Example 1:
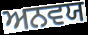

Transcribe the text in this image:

ਅਨਵਯ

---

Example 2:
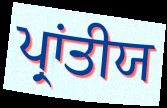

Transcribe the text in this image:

ਪ੍ਰਾਂਤੀਯ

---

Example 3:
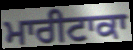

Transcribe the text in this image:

ਮਾਰੀਟਾਕਾ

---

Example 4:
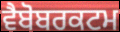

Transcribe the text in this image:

ਵੈਬੋਬਰਕਟਮ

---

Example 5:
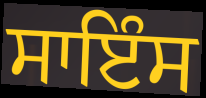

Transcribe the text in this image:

ਸਾਇੰਸ